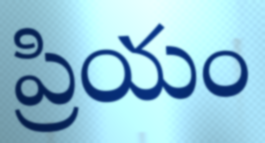
ప్రియం